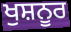
ਖੁਸ਼ਨੂਰ